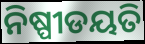
ନିଷ୍ପୀଡୟତି